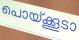
പൊയ്ക്കൂടാ